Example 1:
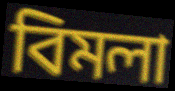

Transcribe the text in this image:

বিমলা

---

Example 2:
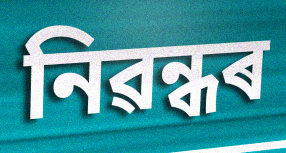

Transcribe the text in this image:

নিৱন্ধৰ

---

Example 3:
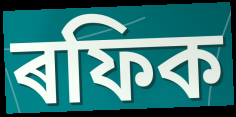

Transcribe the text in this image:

ৰফিক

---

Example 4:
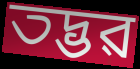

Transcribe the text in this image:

তদ্ভৱ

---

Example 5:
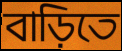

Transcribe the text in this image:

বাড়িতে